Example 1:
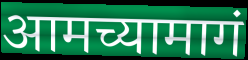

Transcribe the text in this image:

आमच्यामागं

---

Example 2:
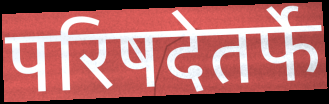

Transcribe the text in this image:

परिषदेतर्फे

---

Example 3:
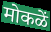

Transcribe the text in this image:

मोकळें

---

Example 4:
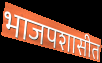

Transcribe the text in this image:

भाजपशासीत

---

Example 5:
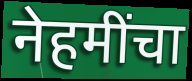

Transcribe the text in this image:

नेहमींचा